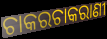
ଚାକରଚାକରାଣୀ